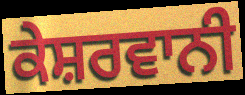
ਕੇਸ਼ਰਵਾਨੀ